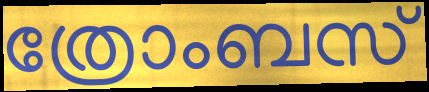
ത്രോംബസ്